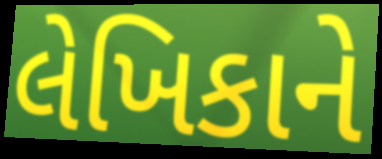
લેખિકાને